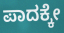
ಪಾದಕ್ಕೇ